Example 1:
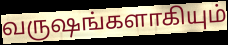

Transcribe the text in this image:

வருஷங்களாகியும்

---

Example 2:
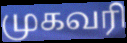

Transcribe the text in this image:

முகவரி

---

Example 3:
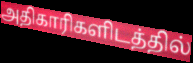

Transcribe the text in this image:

அதிகாரிகளிடத்தில்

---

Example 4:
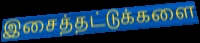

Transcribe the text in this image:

இசைத்தட்டுக்களை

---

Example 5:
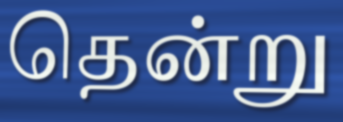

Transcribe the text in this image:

தென்று